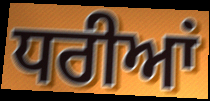
ਧਰੀਆਂ